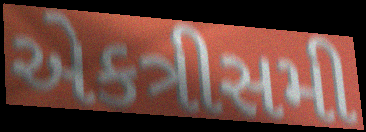
એકત્રીસમી